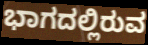
ಭಾಗದಲ್ಲಿರುವ